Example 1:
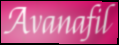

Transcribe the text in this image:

Avanafil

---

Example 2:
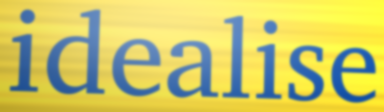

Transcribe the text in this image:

idealise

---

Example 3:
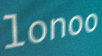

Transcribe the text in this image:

lonoo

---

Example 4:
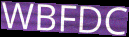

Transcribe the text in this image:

WBFDC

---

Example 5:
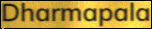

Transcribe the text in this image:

Dharmapala